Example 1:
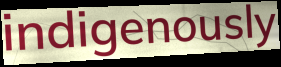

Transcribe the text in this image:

indigenously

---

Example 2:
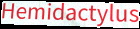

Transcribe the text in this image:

Hemidactylus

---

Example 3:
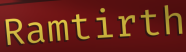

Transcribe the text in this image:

Ramtirth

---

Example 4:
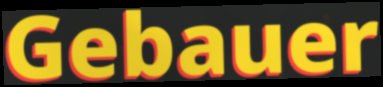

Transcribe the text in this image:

Gebauer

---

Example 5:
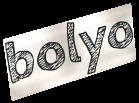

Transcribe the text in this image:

bolyo